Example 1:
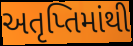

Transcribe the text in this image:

અતૃપ્તિમાંથી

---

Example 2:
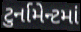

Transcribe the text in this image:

ટુર્નામેન્ટમાં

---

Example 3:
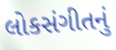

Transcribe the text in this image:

લોકસંગીતનું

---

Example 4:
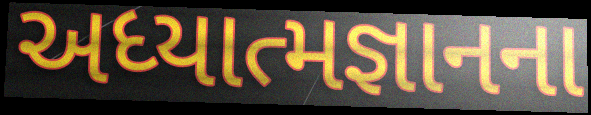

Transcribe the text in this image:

અધ્યાત્મજ્ઞાનના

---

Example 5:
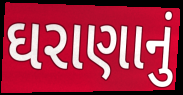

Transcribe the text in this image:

ઘરાણાનું